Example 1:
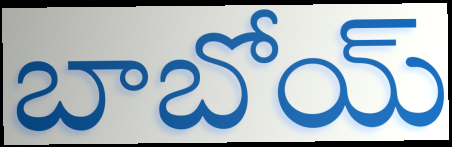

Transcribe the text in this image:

బాబోయ్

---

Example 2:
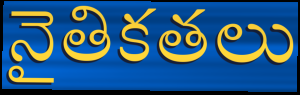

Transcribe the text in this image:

నైతికతలు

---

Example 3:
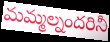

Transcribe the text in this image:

మమ్మల్నందరినీ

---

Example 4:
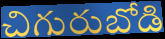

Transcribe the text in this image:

చిగురుబోడి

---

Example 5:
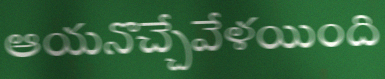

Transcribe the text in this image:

ఆయనొచ్చేవేళయింది